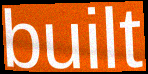
built